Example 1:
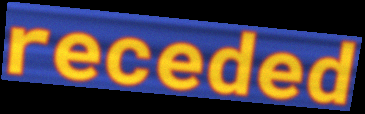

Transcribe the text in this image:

receded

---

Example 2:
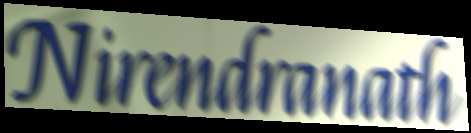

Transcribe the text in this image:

Nirendranath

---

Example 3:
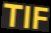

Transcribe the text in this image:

TIF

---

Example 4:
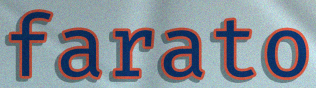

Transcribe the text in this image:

farato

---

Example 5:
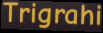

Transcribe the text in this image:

Trigrahi